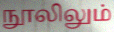
நூலிலும்